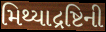
મિથ્યાદ્રષ્ટિની